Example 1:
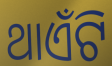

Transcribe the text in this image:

ଥାଏଁଟି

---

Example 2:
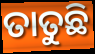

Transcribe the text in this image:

ତାତୁଛି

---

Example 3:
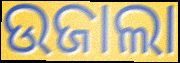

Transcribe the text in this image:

ଉଜାଲା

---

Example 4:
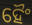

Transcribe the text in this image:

ହୈଂ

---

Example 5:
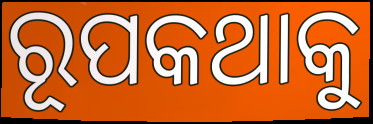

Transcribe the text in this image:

ରୂପକଥାକୁ